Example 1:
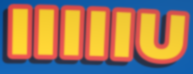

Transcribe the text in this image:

IIIIIU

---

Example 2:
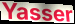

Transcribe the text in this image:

Yasser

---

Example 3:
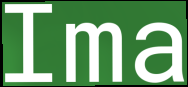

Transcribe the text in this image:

Ima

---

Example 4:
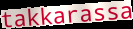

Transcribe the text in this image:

takkarassa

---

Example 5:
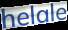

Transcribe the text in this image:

helale